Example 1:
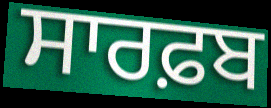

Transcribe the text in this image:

ਸਾਰਫ਼ਬ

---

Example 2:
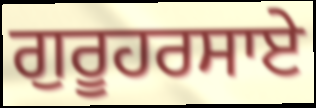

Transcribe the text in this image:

ਗੁਰੂਹਰਸਾਏ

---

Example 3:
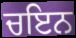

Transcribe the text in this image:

ਚਇਨ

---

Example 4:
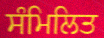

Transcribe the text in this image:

ਸੰਮਿਲਿਤ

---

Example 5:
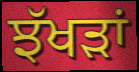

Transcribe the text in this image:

ਝੱਖੜਾਂ